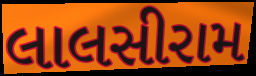
લાલસીરામ